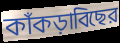
কাঁকড়াবিছের